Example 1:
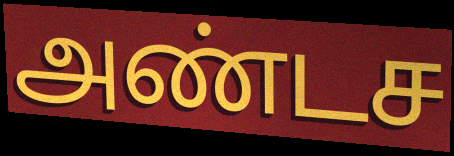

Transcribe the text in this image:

அண்டச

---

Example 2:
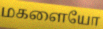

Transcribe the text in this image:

மகளையோ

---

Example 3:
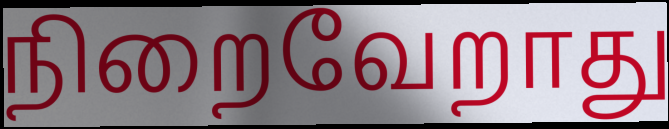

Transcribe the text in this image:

நிறைவேறாது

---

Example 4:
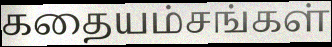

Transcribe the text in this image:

கதையம்சங்கள்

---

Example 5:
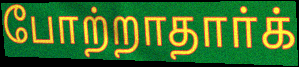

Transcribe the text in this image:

போற்றாதார்க்